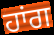
ਹਾਂਗ